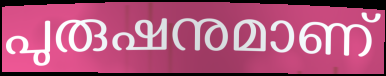
പുരുഷനുമാണ്